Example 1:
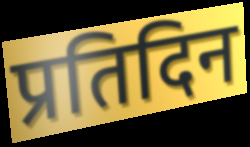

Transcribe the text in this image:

प्रतिदिन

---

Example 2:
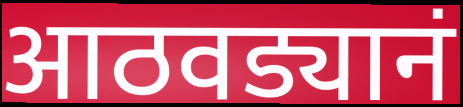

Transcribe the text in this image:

आठवड्यानं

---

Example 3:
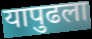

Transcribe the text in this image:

यापुढला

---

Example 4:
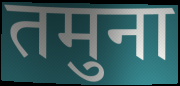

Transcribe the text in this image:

तमुना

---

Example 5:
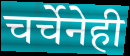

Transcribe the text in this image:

चर्चेनेही